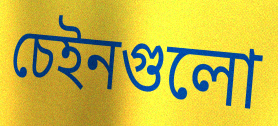
চেইনগুলো